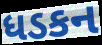
ધડકન